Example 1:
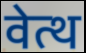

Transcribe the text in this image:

वेत्थ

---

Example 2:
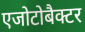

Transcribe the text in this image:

एजोटोबैक्टर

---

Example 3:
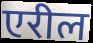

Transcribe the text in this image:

एरील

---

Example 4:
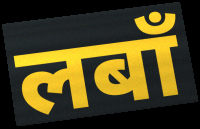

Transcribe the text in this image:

लबाँ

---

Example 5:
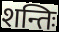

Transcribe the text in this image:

शन्तिः